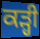
ਕੜ੍ਹੀ